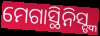
ମେଗାସ୍ଥିନିସ୍ଙ୍କ